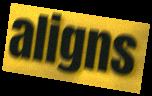
aligns